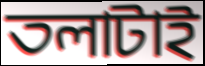
তলাটাই